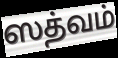
ஸத்வம்